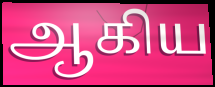
ஆகிய